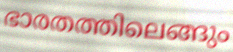
ഭാരതത്തിലെങ്ങും